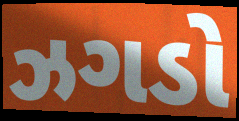
ઝગડો